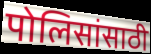
पोलिसांसाठी